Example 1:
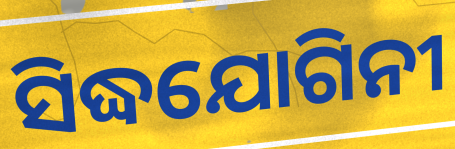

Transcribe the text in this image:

ସିଦ୍ଧଯୋଗିନୀ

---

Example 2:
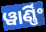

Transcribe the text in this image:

ୱାର୍ଣ୍ଣିଂ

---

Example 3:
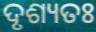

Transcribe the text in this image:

ଦୃଶ୍ୟତଃ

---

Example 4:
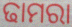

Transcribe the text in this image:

ଢାମରା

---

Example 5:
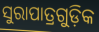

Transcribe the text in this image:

ସୁରାପାତ୍ରଗୁଡ଼ିକ